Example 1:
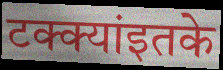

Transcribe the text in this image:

टक्क्यांइतके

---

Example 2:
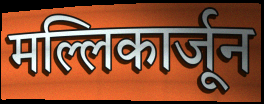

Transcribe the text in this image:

मल्लिकार्जून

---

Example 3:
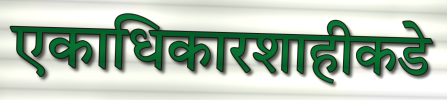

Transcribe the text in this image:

एकाधिकारशाहीकडे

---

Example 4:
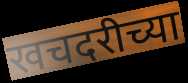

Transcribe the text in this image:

खचदरीच्या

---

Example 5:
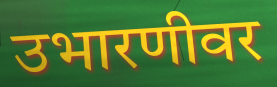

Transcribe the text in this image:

उभारणीवर